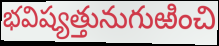
భవిష్యత్తునుగుఱించి